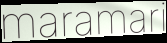
maramari